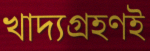
খাদ্যগ্রহণই